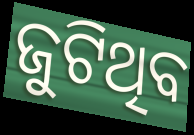
ଜୁଟିଥିବ